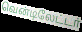
வென்டிலேட்டர்